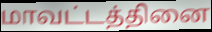
மாவட்டத்தினை